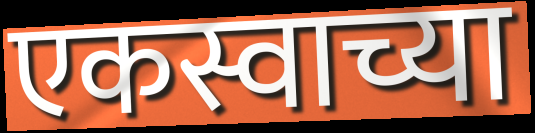
एकस्वाच्या